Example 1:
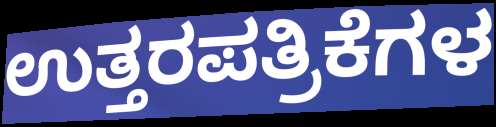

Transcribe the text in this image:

ಉತ್ತರಪತ್ರಿಕೆಗಳ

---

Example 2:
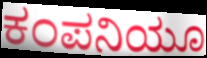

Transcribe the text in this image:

ಕಂಪನಿಯೂ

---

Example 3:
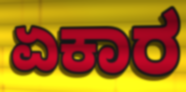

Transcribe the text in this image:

ಏಕಾರ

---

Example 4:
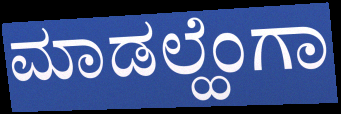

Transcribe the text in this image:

ಮಾಡಲ್ಹೆಂಗಾ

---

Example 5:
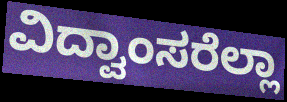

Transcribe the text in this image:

ವಿದ್ವಾಂಸರೆಲ್ಲಾ